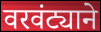
वरवंट्याने